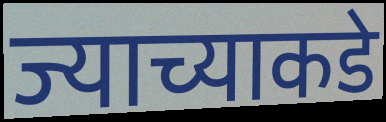
ज्याच्याकडे